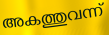
അകത്തുവന്ന്